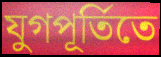
যুগপূর্তিতে